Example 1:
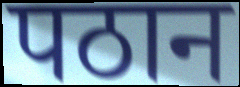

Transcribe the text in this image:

पठान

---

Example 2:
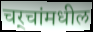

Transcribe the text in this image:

चर्चांमधील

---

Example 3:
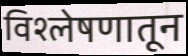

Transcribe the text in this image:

विश्लेषणातून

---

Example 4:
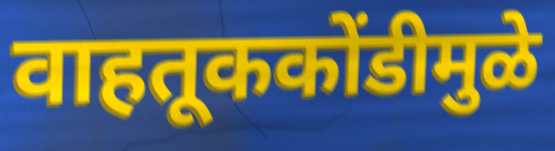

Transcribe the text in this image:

वाहतूककोंडीमुळे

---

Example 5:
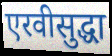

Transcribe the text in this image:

एरवीसुद्धा